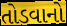
તોડવાનો